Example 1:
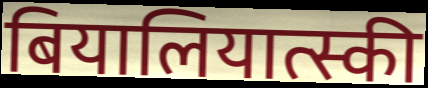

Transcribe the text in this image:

बियालियात्स्की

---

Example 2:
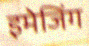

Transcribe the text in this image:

इमेजिंग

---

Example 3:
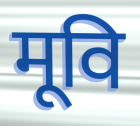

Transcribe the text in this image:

मूवि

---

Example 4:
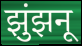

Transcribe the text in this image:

झुंझनू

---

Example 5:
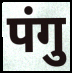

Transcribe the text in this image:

पंगु